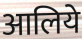
आलिये